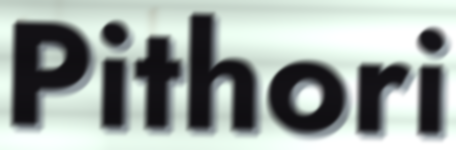
Pithori